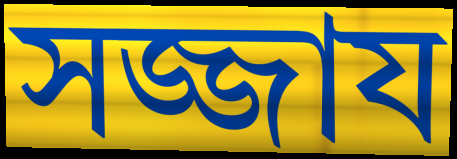
সজ্জায